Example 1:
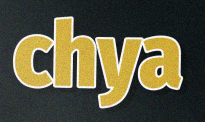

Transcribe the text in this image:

chya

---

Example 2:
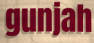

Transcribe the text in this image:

gunjah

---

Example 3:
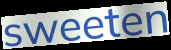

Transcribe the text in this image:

sweeten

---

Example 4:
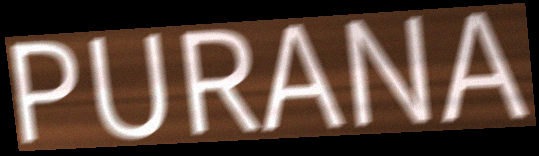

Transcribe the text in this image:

PURANA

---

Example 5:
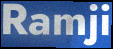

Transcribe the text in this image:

Ramji